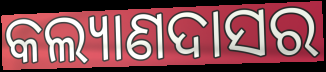
କଲ୍ୟାଣଦାସର